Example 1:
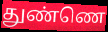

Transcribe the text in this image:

துண்ணெ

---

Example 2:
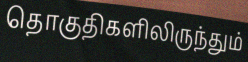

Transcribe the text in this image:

தொகுதிகளிலிருந்தும்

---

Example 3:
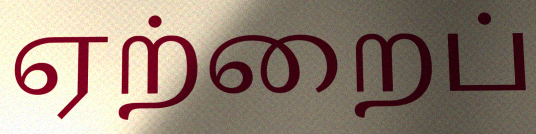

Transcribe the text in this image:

ஏற்றைப்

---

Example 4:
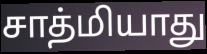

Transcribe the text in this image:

சாத்மியாது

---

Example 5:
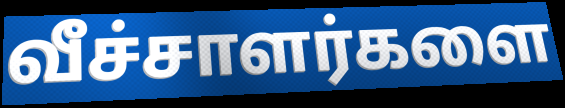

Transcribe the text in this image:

வீச்சாளர்களை